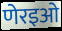
णेरइओ